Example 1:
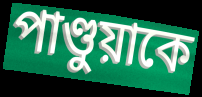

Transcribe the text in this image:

পাণ্ডুয়াকে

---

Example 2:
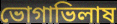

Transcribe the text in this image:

ভোগাভিলাষ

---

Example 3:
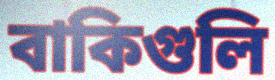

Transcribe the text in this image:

বাকিগুলি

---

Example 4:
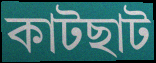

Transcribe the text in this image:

কাটছাট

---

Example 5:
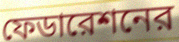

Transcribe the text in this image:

ফেডারেশনের